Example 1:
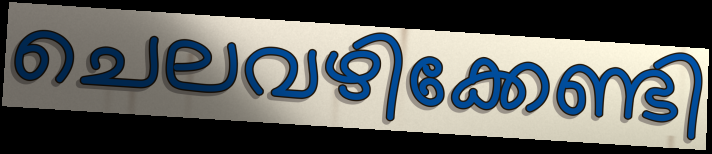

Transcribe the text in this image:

ചെലവഴിക്കേണ്ടി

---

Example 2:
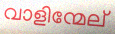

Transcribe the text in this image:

വാളിന്മേല്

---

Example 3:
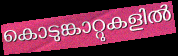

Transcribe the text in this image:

കൊടുങ്കാറ്റുകളിൽ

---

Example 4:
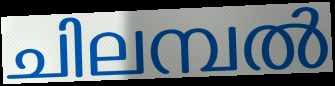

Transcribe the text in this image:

ചിലമ്പൽ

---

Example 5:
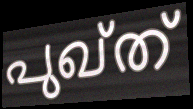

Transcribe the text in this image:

പുഖ്ത്